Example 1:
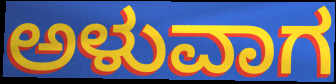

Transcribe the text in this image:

ಅಳುವಾಗ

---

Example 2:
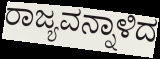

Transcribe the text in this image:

ರಾಜ್ಯವನ್ನಾಳಿದ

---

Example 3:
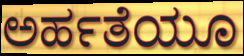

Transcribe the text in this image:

ಅರ್ಹತೆಯೂ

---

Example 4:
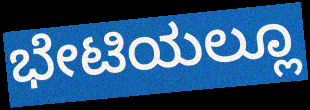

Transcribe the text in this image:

ಭೇಟಿಯಲ್ಲೂ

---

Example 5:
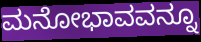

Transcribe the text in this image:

ಮನೋಭಾವವನ್ನೂ